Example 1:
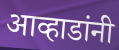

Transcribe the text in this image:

आव्हाडांनी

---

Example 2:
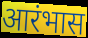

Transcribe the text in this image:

आरंभास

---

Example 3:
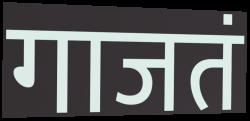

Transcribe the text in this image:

गाजतं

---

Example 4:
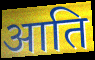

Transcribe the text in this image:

आति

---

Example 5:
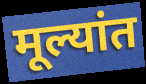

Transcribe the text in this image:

मूल्यांत